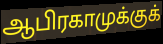
ஆபிரகாமுக்குக்